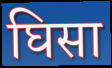
घिसा